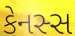
કેનસ્સ